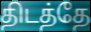
திடத்தே